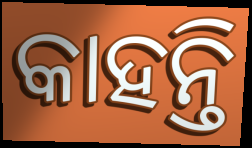
କାହନ୍ତି